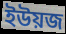
ইউয়জ